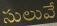
సులువే